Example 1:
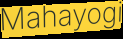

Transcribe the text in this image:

Mahayogi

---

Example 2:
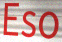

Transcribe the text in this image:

Eso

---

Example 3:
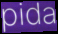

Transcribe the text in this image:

pida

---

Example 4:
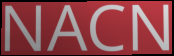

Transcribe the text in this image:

NACN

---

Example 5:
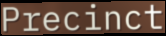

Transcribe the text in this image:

Precinct